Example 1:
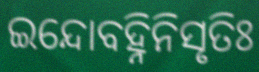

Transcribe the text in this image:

ଇନ୍ଦୋବହ୍ନିନିସୃତିଃ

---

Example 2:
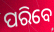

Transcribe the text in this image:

ପରିବେ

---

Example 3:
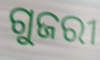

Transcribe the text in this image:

ଗୁଜରୀ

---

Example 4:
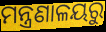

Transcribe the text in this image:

ମନ୍ତ୍ରଣାଳୟରୁ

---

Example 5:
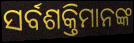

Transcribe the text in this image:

ସର୍ବଶକ୍ତିମାନଙ୍କ